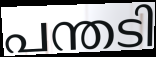
പന്തടി